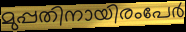
മുപ്പതിനായിരംപേർ